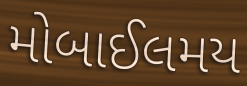
મોબાઈલમય